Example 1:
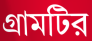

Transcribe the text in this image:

গ্রামটির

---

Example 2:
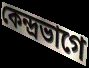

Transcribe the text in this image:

কেন্দ্রভাগে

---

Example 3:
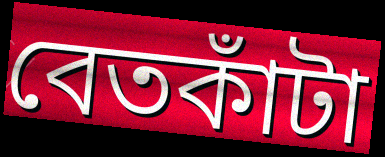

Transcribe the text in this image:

বেতকাঁটা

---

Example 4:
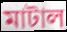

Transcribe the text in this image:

মাটাল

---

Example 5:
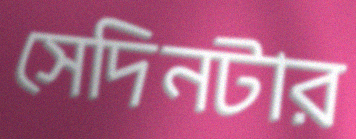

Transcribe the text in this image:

সেদিনটার